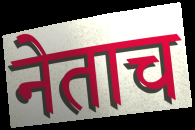
नेताच